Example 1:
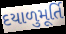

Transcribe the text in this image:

દયાળુમૂર્તિ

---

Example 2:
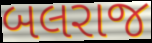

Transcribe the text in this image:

બલરાજ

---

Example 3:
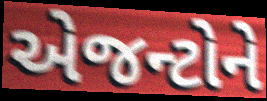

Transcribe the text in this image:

એજન્ટોને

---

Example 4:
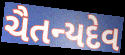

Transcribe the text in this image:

ચૈતન્યદેવ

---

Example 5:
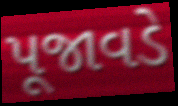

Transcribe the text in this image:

પૂજાવડે